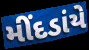
મીંદડાંયે